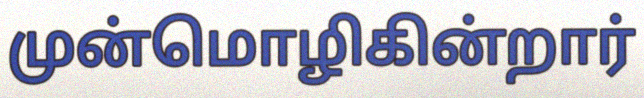
முன்மொழிகின்றார்